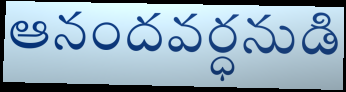
ఆనందవర్ధనుడి